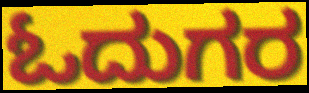
ಓದುಗರ